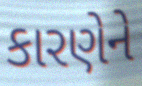
કારણેને